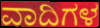
ವಾದಿಗಳ